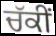
ਚੱਕੀਂ